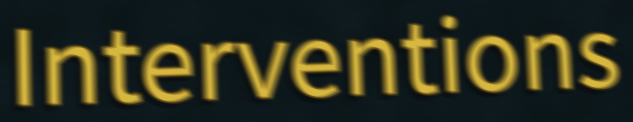
Interventions